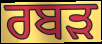
ਰਬੜ